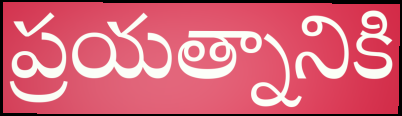
ప్రయత్నానికి